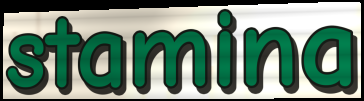
stamina